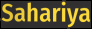
Sahariya